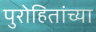
पुरोहितांच्या